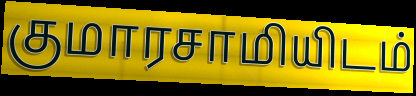
குமாரசாமியிடம்